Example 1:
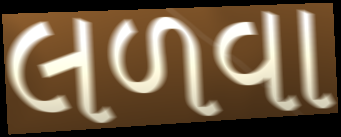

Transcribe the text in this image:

લળવા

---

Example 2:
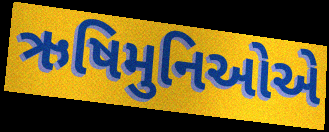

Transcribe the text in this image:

ઋષિમુનિઓએ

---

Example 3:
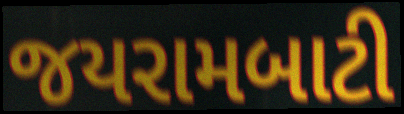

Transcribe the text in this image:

જયરામબાટી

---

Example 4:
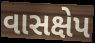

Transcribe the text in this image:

વાસક્ષેપ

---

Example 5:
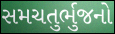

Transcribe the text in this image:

સમચતુર્ભુજનો